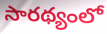
సారథ్యంలో